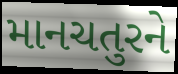
માનચતુરને